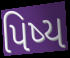
પિષ્ય